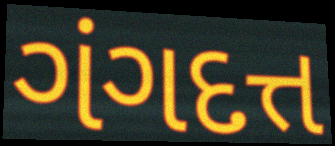
ગંગદત્ત